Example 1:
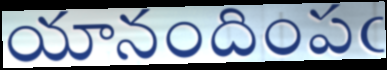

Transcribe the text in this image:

యానందింపఁ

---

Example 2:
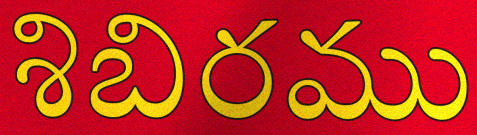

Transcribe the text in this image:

శిబిరము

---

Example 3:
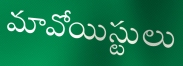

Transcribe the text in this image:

మావోయిస్టులు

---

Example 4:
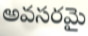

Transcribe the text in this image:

అవసరమై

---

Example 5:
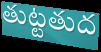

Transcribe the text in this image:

తుట్టతుద